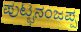
ಪುಟ್ಟನಂಜಪ್ಪ